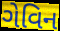
ગેવિન